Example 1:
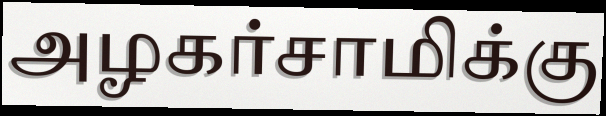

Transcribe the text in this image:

அழகர்சாமிக்கு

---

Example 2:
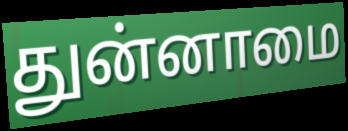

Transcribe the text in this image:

துன்னாமை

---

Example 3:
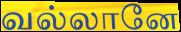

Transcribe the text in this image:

வல்லானே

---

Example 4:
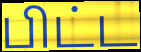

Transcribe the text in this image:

பிட்ட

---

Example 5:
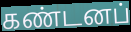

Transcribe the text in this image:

கண்டனப்